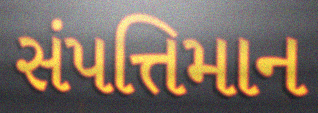
સંપત્તિમાન